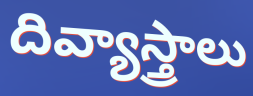
దివ్యాస్త్రాలు